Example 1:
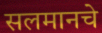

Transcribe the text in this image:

सलमानचे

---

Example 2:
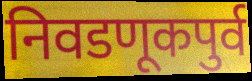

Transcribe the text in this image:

निवडणूकपुर्व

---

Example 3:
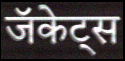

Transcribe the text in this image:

जॅकेट्स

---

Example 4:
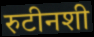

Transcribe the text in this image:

रुटीनशी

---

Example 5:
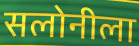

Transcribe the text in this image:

सलोनीला